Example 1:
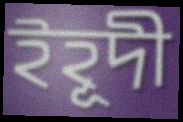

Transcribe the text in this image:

ইহূদী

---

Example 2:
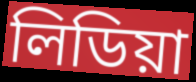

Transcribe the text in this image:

লিডিয়া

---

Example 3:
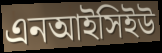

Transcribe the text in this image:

এনআইসিইউ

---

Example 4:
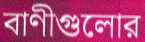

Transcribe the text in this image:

বাণীগুলোর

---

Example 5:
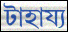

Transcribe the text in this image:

টাহায্য